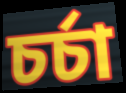
চৰ্চা